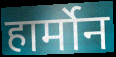
हार्मोन